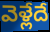
వెళ్లేదే